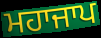
ਮਹਾਜਾਪ